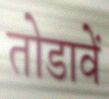
तोडावें